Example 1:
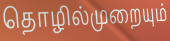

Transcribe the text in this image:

தொழில்முறையும்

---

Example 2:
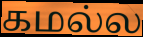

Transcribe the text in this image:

கமல்ல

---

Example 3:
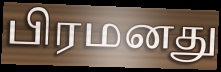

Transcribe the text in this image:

பிரமனது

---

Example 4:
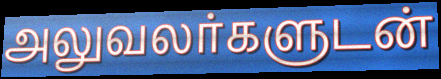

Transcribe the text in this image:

அலுவலர்களுடன்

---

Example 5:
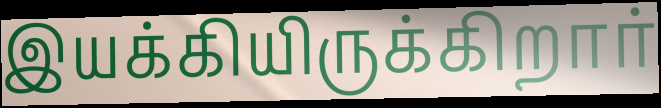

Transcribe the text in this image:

இயக்கியிருக்கிறார்